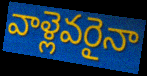
వాళ్లెవరైనా